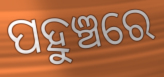
ପହୁଞ୍ଚରେ